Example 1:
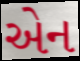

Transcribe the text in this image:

એન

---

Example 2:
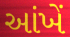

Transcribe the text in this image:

આંખેં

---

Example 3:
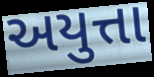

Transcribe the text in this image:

અયુત્તા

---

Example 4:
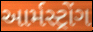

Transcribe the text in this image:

આર્મસ્ટ્રોંગ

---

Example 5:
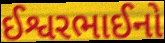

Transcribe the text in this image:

ઈશ્વરભાઈનો